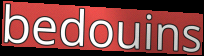
bedouins